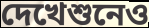
দেখেশুনেও